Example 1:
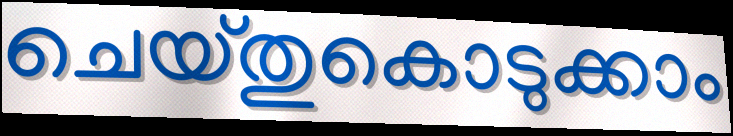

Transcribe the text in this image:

ചെയ്തുകൊടുക്കാം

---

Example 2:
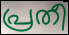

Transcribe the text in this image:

പ്രതീ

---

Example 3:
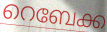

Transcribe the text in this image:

റെബേക്ക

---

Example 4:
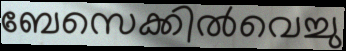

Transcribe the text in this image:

ബേസെക്കിൽവെച്ചു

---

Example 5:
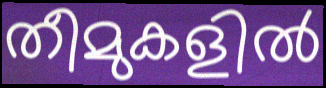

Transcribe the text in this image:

തീമുകളിൽ